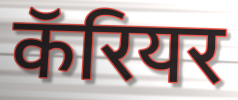
कॅरियर